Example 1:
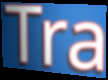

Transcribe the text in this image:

Tra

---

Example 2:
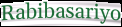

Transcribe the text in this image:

Rabibasariyo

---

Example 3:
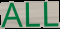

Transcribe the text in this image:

ALL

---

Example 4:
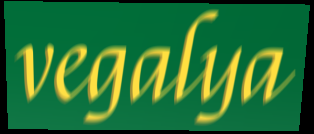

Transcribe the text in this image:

vegalya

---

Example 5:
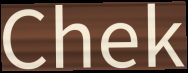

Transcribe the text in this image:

Chek